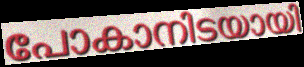
പോകാനിടയായി